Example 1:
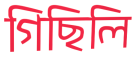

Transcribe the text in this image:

গিছিলি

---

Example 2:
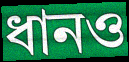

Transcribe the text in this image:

ধানও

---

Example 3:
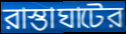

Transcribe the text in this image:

রাস্তাঘাটের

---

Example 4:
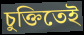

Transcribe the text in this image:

চুক্তিতেই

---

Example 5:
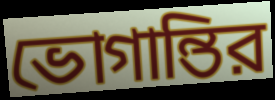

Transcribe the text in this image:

ভোগান্তির